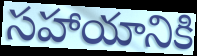
సహాయానికి